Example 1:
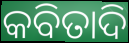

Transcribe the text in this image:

କବିତାଦି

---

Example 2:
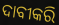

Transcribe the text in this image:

ଦାବୀକରି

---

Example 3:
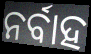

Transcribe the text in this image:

ନର୍ବାହ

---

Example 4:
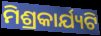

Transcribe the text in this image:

ମିଶ୍ରକାର୍ଯ୍ୟଟି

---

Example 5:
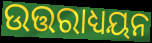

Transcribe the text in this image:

ଉତ୍ତରାଧ୍ୟୟନ